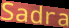
Sadra